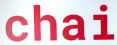
chai